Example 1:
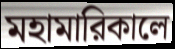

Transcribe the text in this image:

মহামারিকালে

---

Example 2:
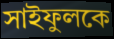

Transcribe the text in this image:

সাইফুলকে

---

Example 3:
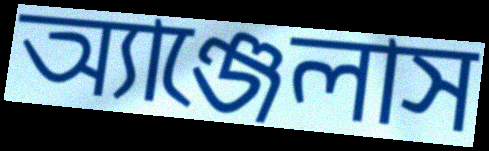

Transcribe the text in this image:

অ্যাঞ্জেলাস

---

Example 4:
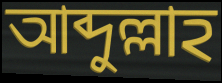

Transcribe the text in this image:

আব্দুল্লাহ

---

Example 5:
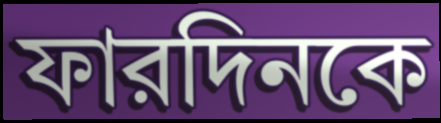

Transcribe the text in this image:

ফারদিনকে